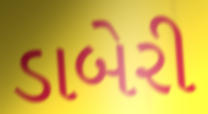
ડાબેરી